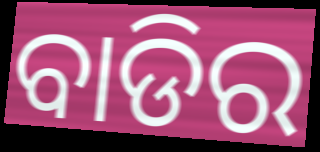
ବାଡିର